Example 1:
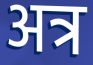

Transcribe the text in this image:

अत्र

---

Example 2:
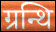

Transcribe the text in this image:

ग्रन्थि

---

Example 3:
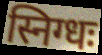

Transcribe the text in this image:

स्निग्धः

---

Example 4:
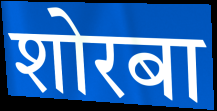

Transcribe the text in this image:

शोरबा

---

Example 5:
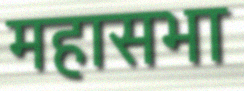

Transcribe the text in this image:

महासभा